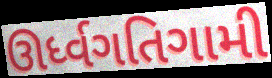
ઊર્ધ્વગતિગામી